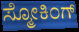
ಸ್ಮೋಕಿಂಗ್